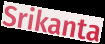
Srikanta